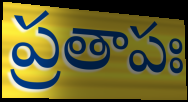
ప్రతాపః